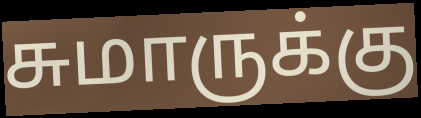
சுமாருக்கு